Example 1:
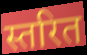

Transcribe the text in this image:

स्तरित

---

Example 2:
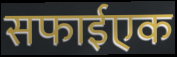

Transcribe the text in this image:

सफाईएक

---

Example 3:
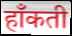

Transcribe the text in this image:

हाँकती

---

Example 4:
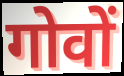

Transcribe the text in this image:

गोवों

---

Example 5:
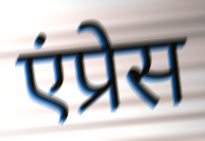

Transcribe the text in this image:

एंप्रेस